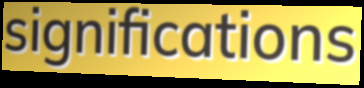
significations